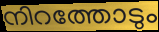
നിറത്തോടും